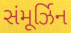
સંમૂર્ઝિન